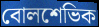
বোলশেভিক